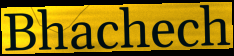
Bhachech